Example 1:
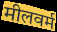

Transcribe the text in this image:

मीलवर्म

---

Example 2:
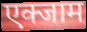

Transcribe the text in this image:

एक्जाम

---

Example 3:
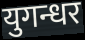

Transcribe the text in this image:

युगन्धर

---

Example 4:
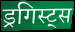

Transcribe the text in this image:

ड्रगिस्ट्स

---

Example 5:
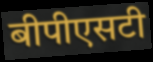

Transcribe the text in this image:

बीपीएसटी